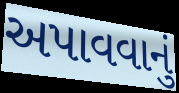
અપાવવાનું